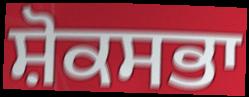
ਸ਼ੋਕਸਭਾ